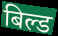
बिल्ड